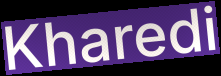
Kharedi